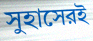
সুহাসেরই